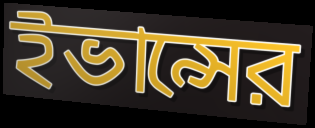
ইভান্সের